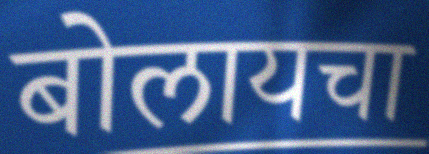
बोलायचा